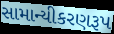
સામાન્યીકરણરૂપ